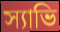
স্যাভি